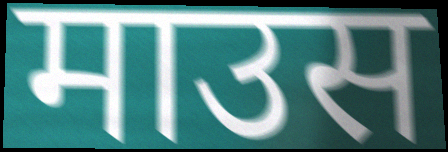
माउस